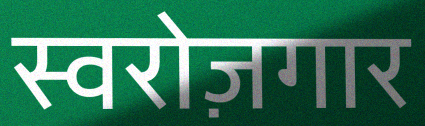
स्वरोज़गार